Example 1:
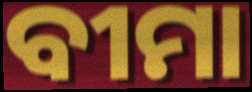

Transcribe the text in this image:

ବୀମା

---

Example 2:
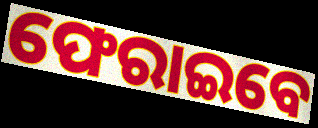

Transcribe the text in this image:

ଫେରାଇବେ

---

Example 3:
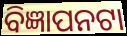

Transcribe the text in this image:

ବିଜ୍ଞାପନଟା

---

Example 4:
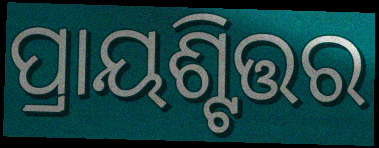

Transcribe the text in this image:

ପ୍ରାୟଶ୍ଟିତ୍ତର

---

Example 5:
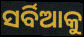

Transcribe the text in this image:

ସର୍ବିଆକୁ